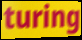
turing